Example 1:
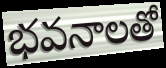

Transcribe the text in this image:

భవనాలతో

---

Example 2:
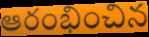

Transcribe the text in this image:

ఆరంభించిన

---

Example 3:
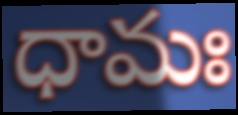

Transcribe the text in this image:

ధామః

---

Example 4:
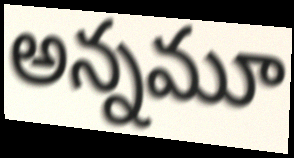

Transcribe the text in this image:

అన్నమూ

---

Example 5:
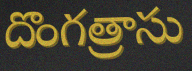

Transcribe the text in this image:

దొంగత్రాసు